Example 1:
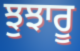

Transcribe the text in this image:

ਝੁਝਾਰੂ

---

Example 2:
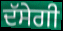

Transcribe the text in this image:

ਦੱਸੇਗੀ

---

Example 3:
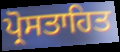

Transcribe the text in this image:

ਪ੍ਰੋਸਤਾਹਿਤ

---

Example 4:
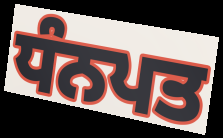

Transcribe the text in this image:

ਧੰਨਪਤ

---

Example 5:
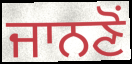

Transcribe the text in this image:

ਜਾਨਣੋਂ